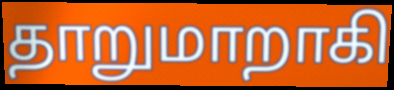
தாறுமாறாகி